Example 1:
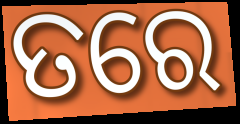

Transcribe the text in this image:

ତରେ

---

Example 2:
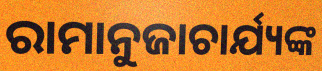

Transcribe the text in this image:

ରାମାନୁଜାଚାର୍ଯ୍ୟଙ୍କ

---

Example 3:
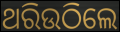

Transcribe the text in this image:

ଥରିଉଠିଲେ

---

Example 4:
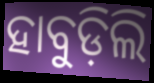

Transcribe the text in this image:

ହାବୁଡ଼ିଲି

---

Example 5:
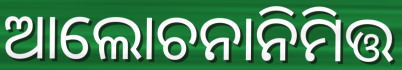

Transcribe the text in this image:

ଆଲୋଚନାନିମିତ୍ତ